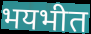
भयभीत